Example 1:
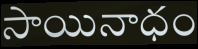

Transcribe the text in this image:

సాయినాధం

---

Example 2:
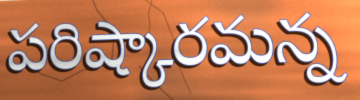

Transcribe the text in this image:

పరిష్కారమన్న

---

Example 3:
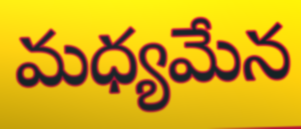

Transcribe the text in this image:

మధ్యమేన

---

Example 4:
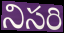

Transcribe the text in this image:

నిసరి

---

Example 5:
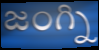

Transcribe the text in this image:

జంగ్ని